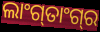
ଲାଂଗ୍‍ତାଂଗ୍‍ର